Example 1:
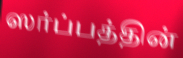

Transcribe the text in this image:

ஸர்ப்பத்தின்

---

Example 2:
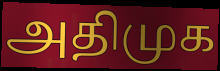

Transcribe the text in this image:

அதிமுக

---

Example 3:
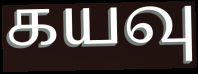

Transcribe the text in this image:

கயவு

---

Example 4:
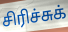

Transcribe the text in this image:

சிரிச்சுக்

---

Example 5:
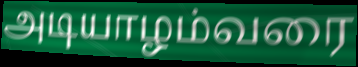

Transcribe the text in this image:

அடியாழம்வரை